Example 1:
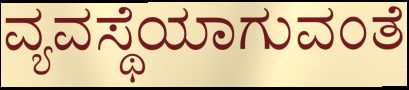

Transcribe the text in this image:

ವ್ಯವಸ್ಥೆಯಾಗುವಂತೆ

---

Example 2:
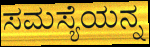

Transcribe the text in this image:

ಸಮಸ್ಯೆಯನ್ನ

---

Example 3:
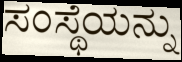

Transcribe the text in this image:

ಸಂಸ್ಥೆಯನ್ನು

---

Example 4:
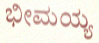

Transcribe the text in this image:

ಭೀಮಯ್ಯ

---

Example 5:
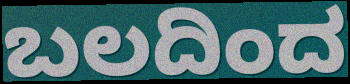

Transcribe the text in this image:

ಬಲದಿಂದ